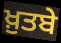
ਖ਼ੁਤਬੇ